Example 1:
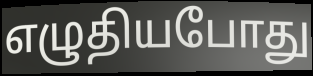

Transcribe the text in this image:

எழுதியபோது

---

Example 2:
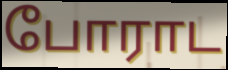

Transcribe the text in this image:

போராட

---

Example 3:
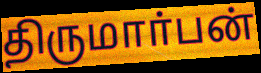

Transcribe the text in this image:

திருமார்பன்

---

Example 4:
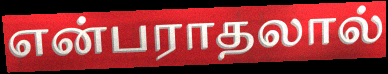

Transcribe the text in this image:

என்பராதலால்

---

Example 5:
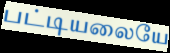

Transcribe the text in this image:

பட்டியலையே